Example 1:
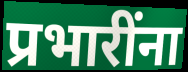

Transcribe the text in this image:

प्रभारींना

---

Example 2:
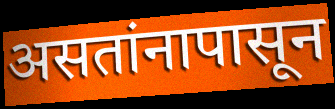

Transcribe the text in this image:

असतांनापासून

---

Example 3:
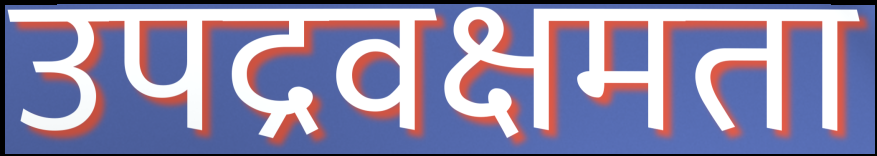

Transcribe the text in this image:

उपद्रवक्षमता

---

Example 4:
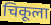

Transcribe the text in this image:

चिकूला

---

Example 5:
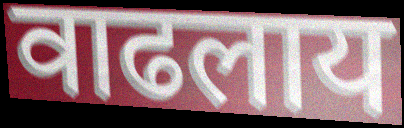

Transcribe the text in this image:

वाढलाय